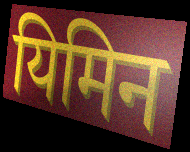
यिमिन